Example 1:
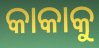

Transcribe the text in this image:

କାକାକୁ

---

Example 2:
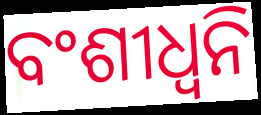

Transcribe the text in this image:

ବଂଶୀଧ୍ବନି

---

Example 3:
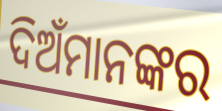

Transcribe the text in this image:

ଦିଅଁମାନଙ୍କର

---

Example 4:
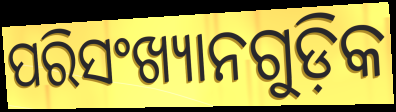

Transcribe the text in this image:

ପରିସଂଖ୍ୟାନଗୁଡ଼ିକ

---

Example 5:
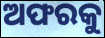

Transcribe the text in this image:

ଅଫରକୁ